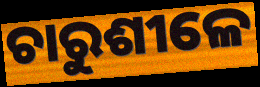
ଚାରୁଶୀଳେ